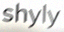
shyly